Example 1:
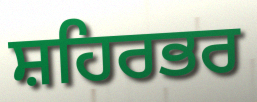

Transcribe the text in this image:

ਸ਼ਹਿਰਭਰ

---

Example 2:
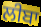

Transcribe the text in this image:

ਲੀਬਾ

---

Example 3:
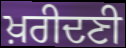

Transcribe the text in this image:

ਖ਼ਰੀਦਣੀ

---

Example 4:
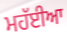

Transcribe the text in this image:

ਮਹੱਈਆ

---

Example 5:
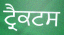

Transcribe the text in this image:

ਟ੍ਰੈਕਟਸ